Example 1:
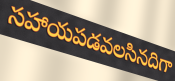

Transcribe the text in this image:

సహాయపడవలసినదిగా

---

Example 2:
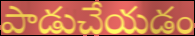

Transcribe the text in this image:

పాడుచేయడం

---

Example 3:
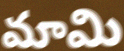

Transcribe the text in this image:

మామి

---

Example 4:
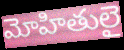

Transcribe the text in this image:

మోహితులై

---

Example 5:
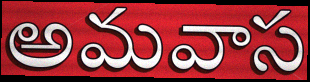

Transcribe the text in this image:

అమవాస